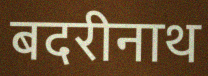
बदरीनाथ